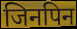
जिनपिन